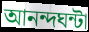
আনন্দঘন্টা